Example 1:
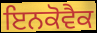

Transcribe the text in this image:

ਇਨਕੋਵੈਕ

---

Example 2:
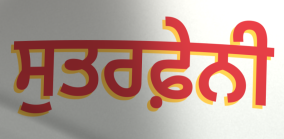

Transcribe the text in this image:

ਸੁਤਰਫ਼ੇਨੀ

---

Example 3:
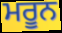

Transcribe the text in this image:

ਮਰੂਨ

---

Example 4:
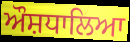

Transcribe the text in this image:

ਔਸ਼ਧਾਲਿਆ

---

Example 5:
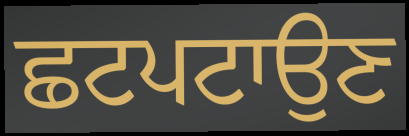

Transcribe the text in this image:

ਛਟਪਟਾਉਣ